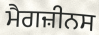
ਮੈਗਜ਼ੀਨਸ